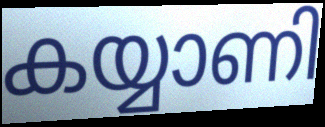
കയ്യാണി